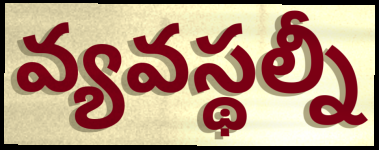
వ్యవస్థల్నీ